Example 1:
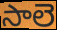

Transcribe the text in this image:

సాలె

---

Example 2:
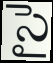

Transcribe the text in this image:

సై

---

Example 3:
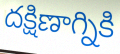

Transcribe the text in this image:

దక్షిణాగ్నికి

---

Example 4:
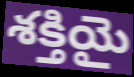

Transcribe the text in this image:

శక్తియై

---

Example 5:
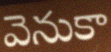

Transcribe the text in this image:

వెనుకా